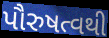
પૌરુષત્વથી